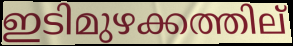
ഇടിമുഴക്കത്തില്